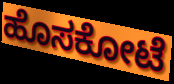
ಹೊಸಕೋಟೆ